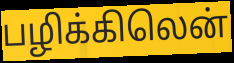
பழிக்கிலென்